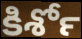
కిశోర్‍